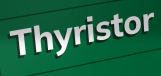
Thyristor